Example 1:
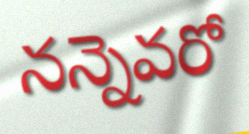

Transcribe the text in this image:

నన్నెవరో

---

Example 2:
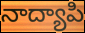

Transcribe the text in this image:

నాద్యాపి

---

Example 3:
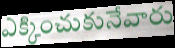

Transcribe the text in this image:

ఎక్కించుకునేవారు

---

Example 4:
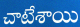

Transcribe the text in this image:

చాటేశాయి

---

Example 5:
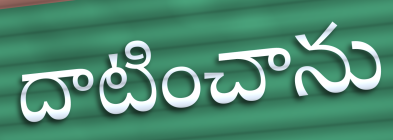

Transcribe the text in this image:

దాటించాను